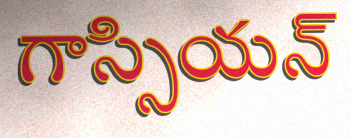
గాస్సియన్